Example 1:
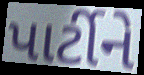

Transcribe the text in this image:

પાર્ટીને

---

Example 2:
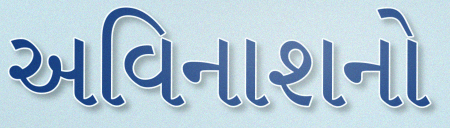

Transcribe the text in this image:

અવિનાશનો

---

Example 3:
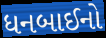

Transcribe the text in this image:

ધનબાઈનો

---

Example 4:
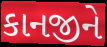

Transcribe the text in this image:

કાનજીને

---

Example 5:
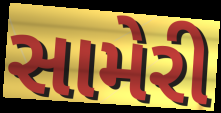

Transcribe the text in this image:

સામેરી